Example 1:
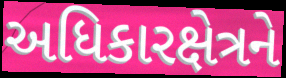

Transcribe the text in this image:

અધિકારક્ષેત્રને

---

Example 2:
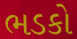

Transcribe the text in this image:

ભડકો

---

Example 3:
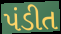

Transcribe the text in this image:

પંડીત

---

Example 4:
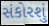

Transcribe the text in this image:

સંકોરશું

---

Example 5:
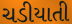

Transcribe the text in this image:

ચડીયાતી